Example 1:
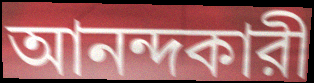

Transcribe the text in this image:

আনন্দকারী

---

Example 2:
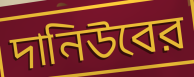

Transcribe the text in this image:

দানিউবের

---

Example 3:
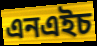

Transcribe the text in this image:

এনএইচ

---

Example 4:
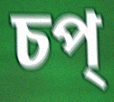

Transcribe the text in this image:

চপ্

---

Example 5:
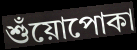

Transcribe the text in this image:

শুঁয়োপোকা